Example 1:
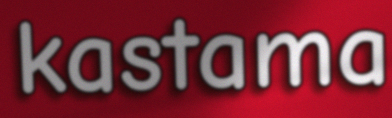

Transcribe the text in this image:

kastama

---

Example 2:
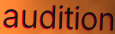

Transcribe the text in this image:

audition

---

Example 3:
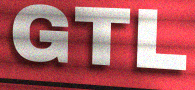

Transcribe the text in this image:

GTL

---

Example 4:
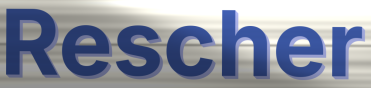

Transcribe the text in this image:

Rescher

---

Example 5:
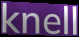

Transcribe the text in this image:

knell